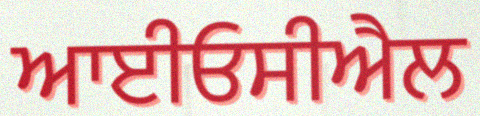
ਆਈਓਸੀਐਲ